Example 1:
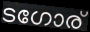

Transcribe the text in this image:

ടഗോര്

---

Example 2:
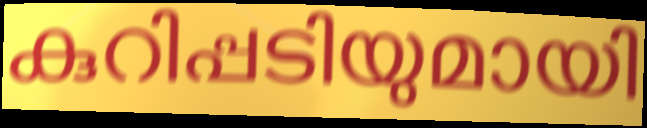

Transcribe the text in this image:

കുറിപ്പടിയുമായി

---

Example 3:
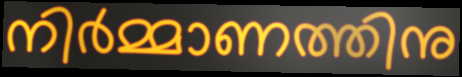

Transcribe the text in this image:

നിർമ്മാണത്തിനു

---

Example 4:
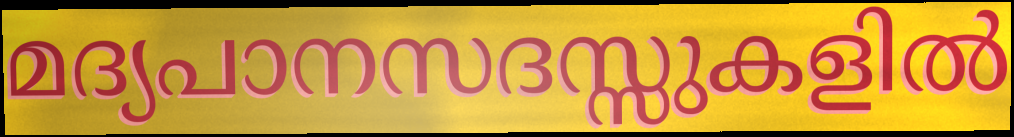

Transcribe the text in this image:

മദ്യപാനസദസ്സുകളിൽ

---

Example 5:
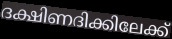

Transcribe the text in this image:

ദക്ഷിണദിക്കിലേക്ക്